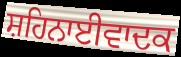
ਸ਼ਹਿਨਾਈਵਾਦਕ